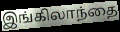
இங்கிலாந்தை